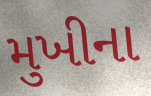
મુખીના